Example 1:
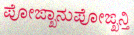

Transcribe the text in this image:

ಪೋಙ್ಖಾನುಪೋಙ್ಖನ್ತಿ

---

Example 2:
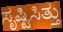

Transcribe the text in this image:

ಸೃಷ್ಟಿಸಿತ್ತು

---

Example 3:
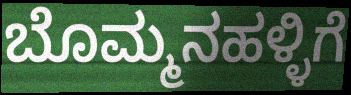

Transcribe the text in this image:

ಬೊಮ್ಮನಹಳ್ಳಿಗೆ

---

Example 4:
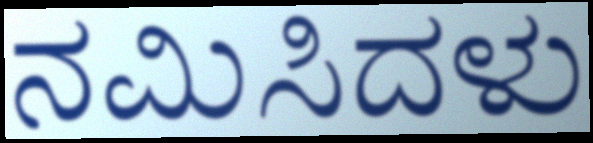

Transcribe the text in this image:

ನಮಿಸಿದಳು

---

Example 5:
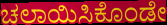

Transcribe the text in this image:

ಚಲಾಯಿಸಿಕೊಂಡೇ